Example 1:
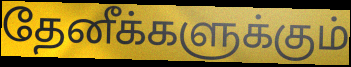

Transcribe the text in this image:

தேனீக்களுக்கும்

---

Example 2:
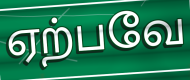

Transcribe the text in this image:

ஏற்பவே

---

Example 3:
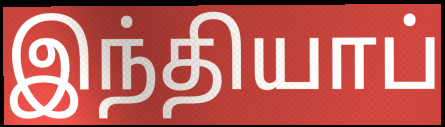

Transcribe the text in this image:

இந்தியாப்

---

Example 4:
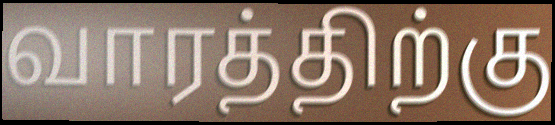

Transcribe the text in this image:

வாரத்திற்கு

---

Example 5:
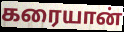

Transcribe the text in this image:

கரையான்